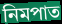
নিমপাত